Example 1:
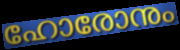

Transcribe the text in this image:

ഹോരോനും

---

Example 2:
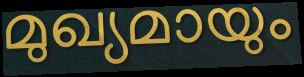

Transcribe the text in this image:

മുഖ്യമായും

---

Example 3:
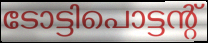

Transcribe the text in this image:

ടോട്ടിപൊട്ടന്റ്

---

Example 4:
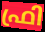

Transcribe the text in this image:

ഫ്രി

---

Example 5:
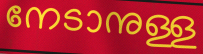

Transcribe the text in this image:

നേടാനുള്ള